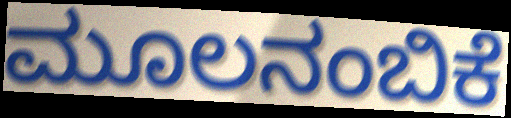
ಮೂಲನಂಬಿಕೆ